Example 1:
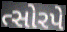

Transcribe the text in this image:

ત્સોરપે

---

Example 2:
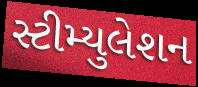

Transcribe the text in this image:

સ્ટીમ્યુલેશન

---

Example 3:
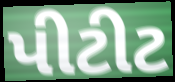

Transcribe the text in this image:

પીટીટ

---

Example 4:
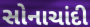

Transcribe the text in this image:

સોનાચાંદી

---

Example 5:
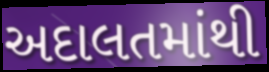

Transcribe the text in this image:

અદાલતમાંથી